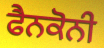
ਫੈਨਕੋਨੀ